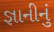
જ્ઞાનીનું